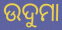
ଉଦୁମା